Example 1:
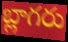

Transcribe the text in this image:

బ్లాగరు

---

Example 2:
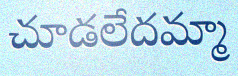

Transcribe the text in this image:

చూడలేదమ్మా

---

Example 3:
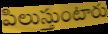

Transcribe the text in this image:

పిలుస్తుంటారు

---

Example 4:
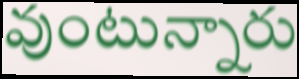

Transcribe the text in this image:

వుంటున్నారు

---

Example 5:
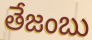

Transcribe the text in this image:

తేజంబు